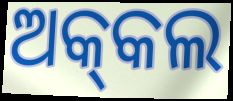
ଅକ୍‌କଲ